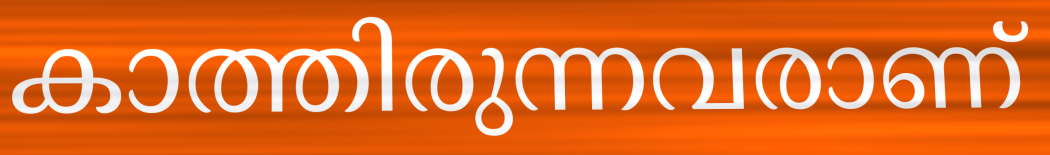
കാത്തിരുന്നവരാണ്